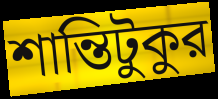
শান্তিটুকুর